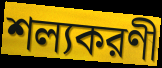
শল্যকরণী